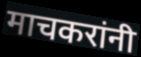
माचकरांनी